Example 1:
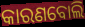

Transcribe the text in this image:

କାରଣବୋଲି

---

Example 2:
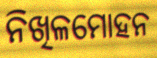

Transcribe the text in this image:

ନିଖିଳମୋହନ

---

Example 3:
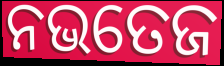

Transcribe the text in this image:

ନଭତେଜ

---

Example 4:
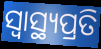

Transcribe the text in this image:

ସ୍ବାସ୍ଥ୍ୟପ୍ରତି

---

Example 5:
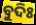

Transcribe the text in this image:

ବୁଦିଃ